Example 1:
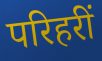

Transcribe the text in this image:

परिहरीं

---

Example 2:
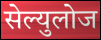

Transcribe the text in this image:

सेल्युलोज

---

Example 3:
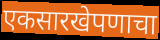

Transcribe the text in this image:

एकसारखेपणाचा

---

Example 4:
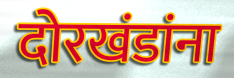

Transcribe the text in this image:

दोरखंडांना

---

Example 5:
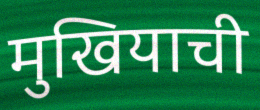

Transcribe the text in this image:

मुखियाची